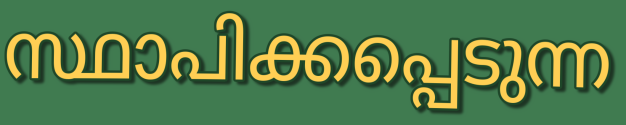
സ്ഥാപിക്കപ്പെടുന്ന